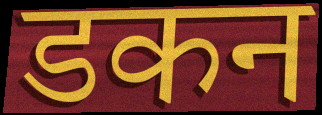
डकन